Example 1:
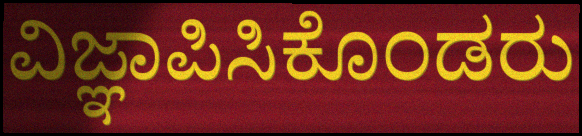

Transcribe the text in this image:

ವಿಜ್ಞಾಪಿಸಿಕೊಂಡರು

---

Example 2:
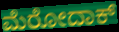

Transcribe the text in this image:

ಮೆರೋದಾಕ್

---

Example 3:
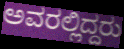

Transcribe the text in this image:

ಅವರಲ್ಲಿದ್ದರು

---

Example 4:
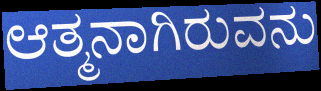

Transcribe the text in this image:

ಆತ್ಮನಾಗಿರುವನು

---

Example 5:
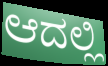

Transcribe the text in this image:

ಆದಲ್ಲಿ